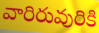
వారిరువురికి